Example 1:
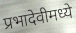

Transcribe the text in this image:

प्रभादेवीमध्ये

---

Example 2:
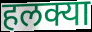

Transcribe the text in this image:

हलक्या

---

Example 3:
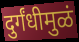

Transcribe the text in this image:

दुर्गंधीमुळं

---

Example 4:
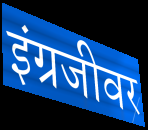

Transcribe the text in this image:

इंग्रजीवर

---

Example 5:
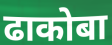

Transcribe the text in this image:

ढाकोबा